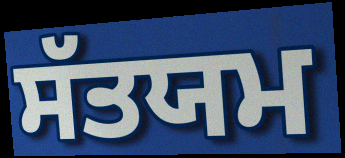
ਸੱਤਯਮ